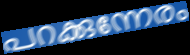
പറക്കുന്നേരം